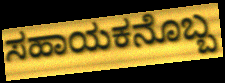
ಸಹಾಯಕನೊಬ್ಬ